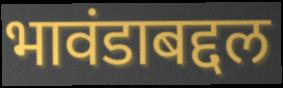
भावंडाबद्दल